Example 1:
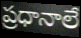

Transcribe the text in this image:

ప్రధానాలే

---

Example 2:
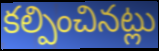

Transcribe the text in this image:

కల్పించినట్లు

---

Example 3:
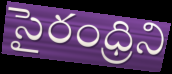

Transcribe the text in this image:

సైరంధ్రిని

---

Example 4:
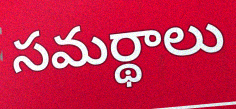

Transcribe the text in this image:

సమర్థాలు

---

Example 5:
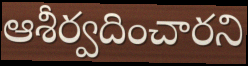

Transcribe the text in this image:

ఆశీర్వదించారని